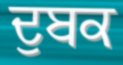
ਦੁਬਕ